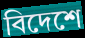
বিদেশে